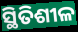
ସ୍ଥିତିଶୀଳ